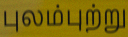
புலம்புற்று